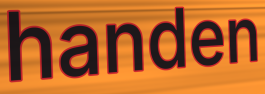
handen